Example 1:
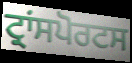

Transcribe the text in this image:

ਟ੍ਰਾਂਸਪੋਰਟਸ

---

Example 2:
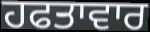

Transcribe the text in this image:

ਹਫਤਾਵਾਰ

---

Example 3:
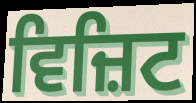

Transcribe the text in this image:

ਵਿਜ਼ਿਟ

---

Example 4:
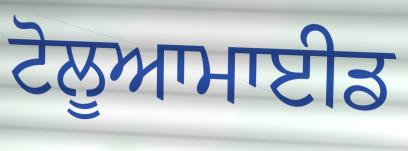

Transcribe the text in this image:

ਟੋਲੂਆਮਾਈਡ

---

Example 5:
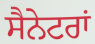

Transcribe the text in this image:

ਸੈਨੇਟਰਾਂ